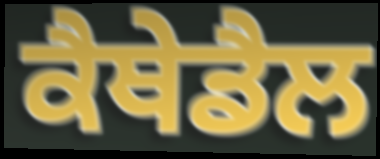
ਕੈਥੇਡੈਲ